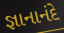
જ્ઞાનાનંદે